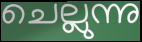
ചെല്ലുന്നു